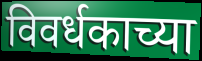
विवर्धकाच्या